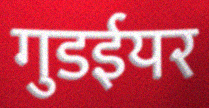
गुडईयर